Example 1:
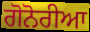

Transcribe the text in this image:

ਗੋਨੋਰੀਆ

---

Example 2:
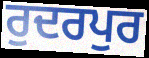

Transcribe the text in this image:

ਰੁਦਰਪੁਰ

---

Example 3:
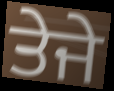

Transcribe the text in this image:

ਤੇਜੇ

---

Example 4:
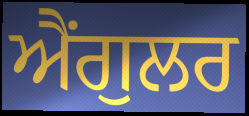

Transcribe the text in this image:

ਐਂਗੁਲਰ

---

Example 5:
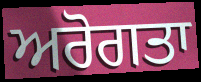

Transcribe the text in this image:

ਅਰੋਗਤਾ